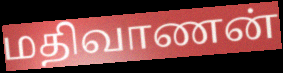
மதிவாணன்